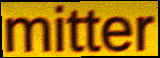
mitter